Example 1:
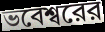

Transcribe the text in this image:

ভবেশ্বরের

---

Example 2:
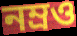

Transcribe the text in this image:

নম্রও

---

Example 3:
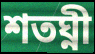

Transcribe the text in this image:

শতঘ্নী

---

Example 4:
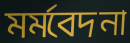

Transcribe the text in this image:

মর্মবেদনা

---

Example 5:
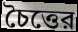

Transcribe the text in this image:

চৈত্তের